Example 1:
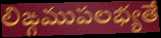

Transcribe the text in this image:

లిఙ్గముపలభ్యతే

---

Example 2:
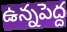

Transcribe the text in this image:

ఉన్నపెద్ద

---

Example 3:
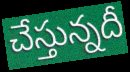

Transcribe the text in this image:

చేస్తున్నదీ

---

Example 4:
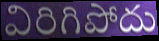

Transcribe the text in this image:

విరిగిపోదు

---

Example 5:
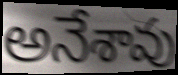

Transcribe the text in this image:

అనేశావు